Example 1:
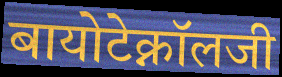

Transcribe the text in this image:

बायोटेक्नॉलजी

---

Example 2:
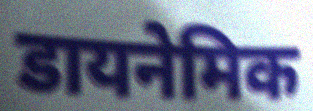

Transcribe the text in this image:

डायनेमिक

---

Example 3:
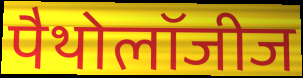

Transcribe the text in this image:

पैथोलॉजीज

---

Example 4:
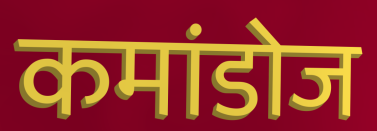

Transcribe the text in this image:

कमांडोज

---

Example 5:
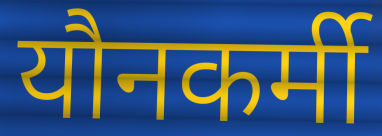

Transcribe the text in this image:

यौनकर्मी